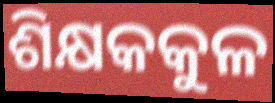
ଶିକ୍ଷକକୁଳ